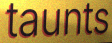
taunts